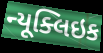
ન્યૂક્લિઇક